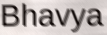
Bhavya